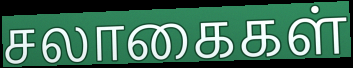
சலாகைகள்